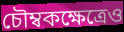
চৌম্বকক্ষেত্রেও